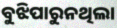
ବୁଝିପାରୁନଥିଲା